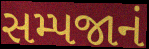
સમ્પજાનં